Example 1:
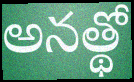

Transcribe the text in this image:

అనత్థో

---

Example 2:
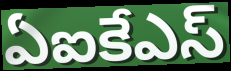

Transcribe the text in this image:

ఏఐకేఎస్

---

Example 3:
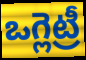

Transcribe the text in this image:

ఒగ్లెట్రీ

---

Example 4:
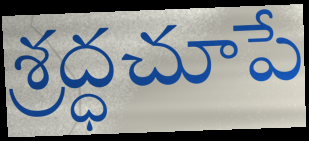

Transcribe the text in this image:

శ్రద్ధచూపే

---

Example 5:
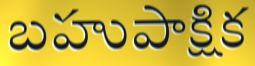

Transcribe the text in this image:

బహుపాక్షిక